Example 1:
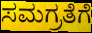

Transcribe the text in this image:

ಸಮಗ್ರತೆಗೆ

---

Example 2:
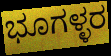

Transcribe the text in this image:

ಭೂಗಳ್ಳರ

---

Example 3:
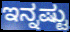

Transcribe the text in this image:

ಇನ್ನಷ್ಟು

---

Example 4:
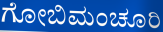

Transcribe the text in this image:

ಗೋಬಿಮಂಚೂರಿ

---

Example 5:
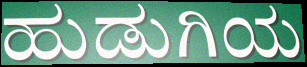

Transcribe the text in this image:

ಹುಡುಗಿಯ